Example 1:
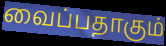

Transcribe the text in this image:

வைப்பதாகும்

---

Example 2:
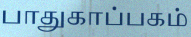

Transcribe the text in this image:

பாதுகாப்பகம்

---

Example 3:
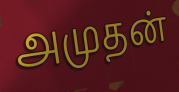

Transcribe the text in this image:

அமுதன்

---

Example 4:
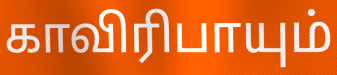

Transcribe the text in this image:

காவிரிபாயும்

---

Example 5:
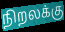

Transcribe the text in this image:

நிறலக்கு